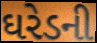
ઘરેડની